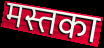
मस्तका